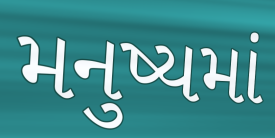
મનુષ્યમાં